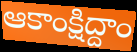
ఆకాంక్షిద్దాం